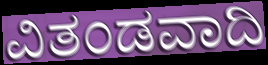
ವಿತಂಡವಾದಿ